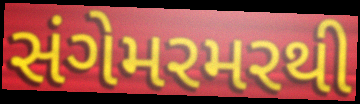
સંગેમરમરથી